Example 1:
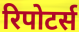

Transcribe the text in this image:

रिपोटर्स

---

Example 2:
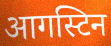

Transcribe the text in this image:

आगस्टिन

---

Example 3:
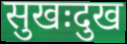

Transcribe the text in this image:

सुखःदुख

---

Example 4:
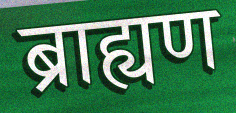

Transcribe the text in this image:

ब्राह्यण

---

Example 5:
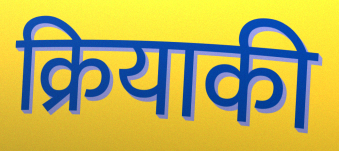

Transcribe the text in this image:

क्रियाकी